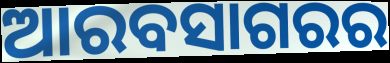
ଆରବସାଗରର